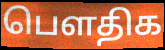
பெளதிக